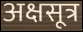
अक्षसूत्र